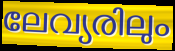
ലേവ്യരിലും